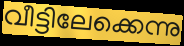
വീട്ടിലേക്കെന്നു